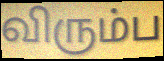
விரும்ப